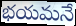
భయమనే